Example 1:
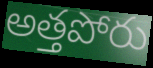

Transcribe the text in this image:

అత్తపోరు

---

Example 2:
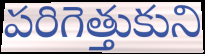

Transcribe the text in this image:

పరిగెత్తుకుని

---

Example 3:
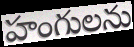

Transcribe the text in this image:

హంగులను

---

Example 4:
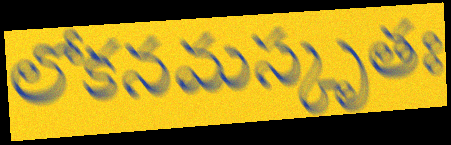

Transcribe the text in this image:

లోకనమస్కృతః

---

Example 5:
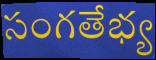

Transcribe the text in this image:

సంగతేభ్య